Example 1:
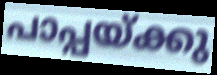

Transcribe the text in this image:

പാപ്പയ്ക്കു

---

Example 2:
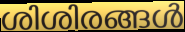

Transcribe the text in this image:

ശിശിരങ്ങൾ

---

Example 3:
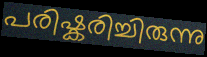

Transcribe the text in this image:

പരിഷ്കരിച്ചിരുന്നു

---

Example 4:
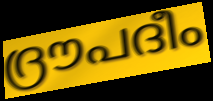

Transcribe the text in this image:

ദ്രൗപദീം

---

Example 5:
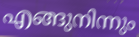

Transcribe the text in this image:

എങ്ങുനിന്നും